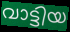
വാട്ടിയ